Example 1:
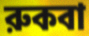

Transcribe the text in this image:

রুকবা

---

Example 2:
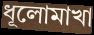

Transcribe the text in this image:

ধূলোমাখা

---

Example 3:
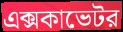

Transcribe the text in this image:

এক্সকাভেটর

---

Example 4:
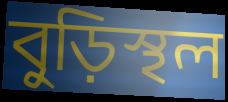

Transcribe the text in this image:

বুড়িস্থল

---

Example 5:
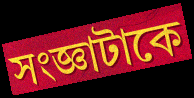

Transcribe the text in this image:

সংজ্ঞাটাকে